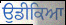
ਉਡੀਕਿਆ